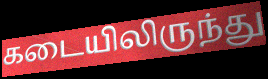
கடையிலிருந்து